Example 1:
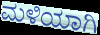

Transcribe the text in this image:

ಮಳಿಯಾಗಿ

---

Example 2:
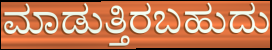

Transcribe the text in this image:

ಮಾಡುತ್ತಿರಬಹುದು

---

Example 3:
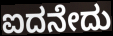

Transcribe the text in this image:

ಐದನೇದು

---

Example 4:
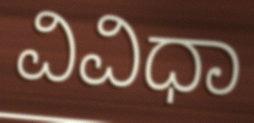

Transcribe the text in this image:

ವಿವಿಧಾ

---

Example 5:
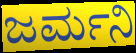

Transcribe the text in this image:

ಜರ್ಮನಿ